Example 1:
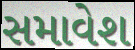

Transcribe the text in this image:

સમાવેશ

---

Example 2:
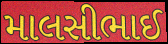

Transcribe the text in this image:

માલસીભાઈ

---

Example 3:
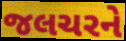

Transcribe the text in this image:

જલચરને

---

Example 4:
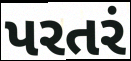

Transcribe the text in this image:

પરતરં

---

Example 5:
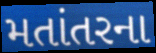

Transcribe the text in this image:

મતાંતરના